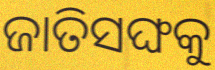
ଜାତିସଙ୍ଘକୁ